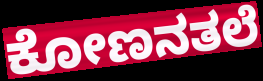
ಕೋಣನತಲೆ